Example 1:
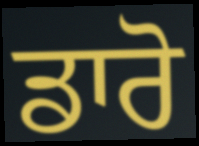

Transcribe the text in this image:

ਡਾਰੋ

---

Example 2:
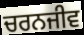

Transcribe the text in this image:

ਚਰਨਜੀਵ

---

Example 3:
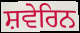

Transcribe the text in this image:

ਸ਼ਵੇਰਿਨ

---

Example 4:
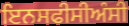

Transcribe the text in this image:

ਇਨਸਫੀਸੀਅੰਸੀ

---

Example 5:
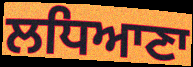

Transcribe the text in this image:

ਲਧਿਆਣਾ